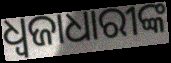
ଧ୍ୱଜାଧାରୀଙ୍କ